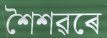
শৈশৱৰে